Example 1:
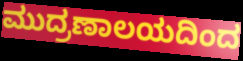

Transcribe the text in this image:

ಮುದ್ರಣಾಲಯದಿಂದ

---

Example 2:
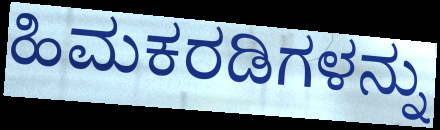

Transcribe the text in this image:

ಹಿಮಕರಡಿಗಳನ್ನು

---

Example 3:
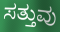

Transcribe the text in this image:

ಸತ್ತುವು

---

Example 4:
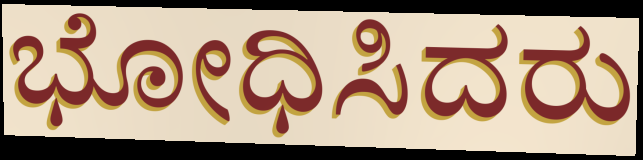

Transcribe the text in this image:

ಭೋಧಿಸಿದರು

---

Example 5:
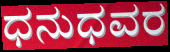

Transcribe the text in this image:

ಧನುಧವರ